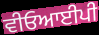
ਵੀਓਆਈਪੀ